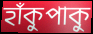
হাঁকুপাকু